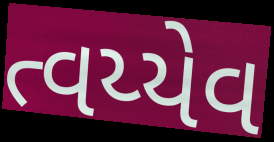
ત્વય્યેવ